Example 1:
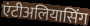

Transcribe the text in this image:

एंटीअलियासिंग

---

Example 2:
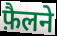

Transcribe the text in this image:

फ़ैलने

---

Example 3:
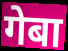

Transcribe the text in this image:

गेबा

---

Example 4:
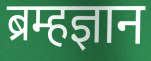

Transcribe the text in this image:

ब्रम्हज्ञान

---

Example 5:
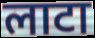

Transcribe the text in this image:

लाटा